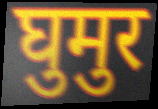
घुमुर